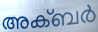
അക്ബർ